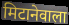
मिटानेवाला